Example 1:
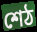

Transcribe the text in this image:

শেঠ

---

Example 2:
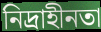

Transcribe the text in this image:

নিদ্রাহীনতা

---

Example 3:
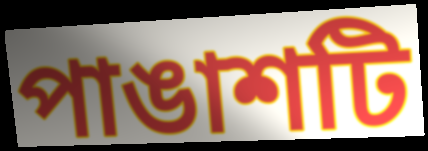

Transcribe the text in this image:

পাঙাশটি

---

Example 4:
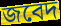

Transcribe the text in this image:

জবেদ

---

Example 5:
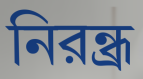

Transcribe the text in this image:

নিরন্ধ্র